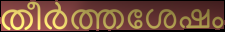
തീർത്തശേഷം